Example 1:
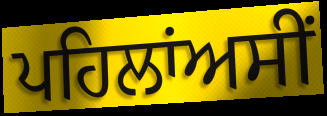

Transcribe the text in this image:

ਪਹਿਲਾਂਅਸੀਂ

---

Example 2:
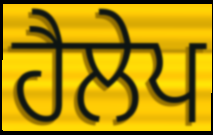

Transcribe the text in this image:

ਹੈਲੇਪ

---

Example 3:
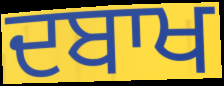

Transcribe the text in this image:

ਦਬਾਖ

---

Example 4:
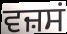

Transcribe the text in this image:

ਵਜ਼ਸਂ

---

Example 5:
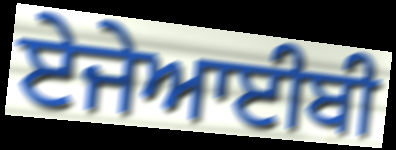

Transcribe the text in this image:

ਏਜੇਆਈਬੀ